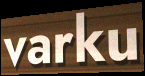
varku